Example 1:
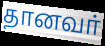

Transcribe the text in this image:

தானவர்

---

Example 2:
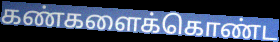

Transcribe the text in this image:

கண்களைக்கொண்ட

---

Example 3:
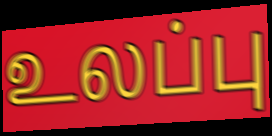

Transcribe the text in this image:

உலப்பு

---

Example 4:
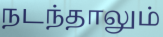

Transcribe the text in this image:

நடந்தாலும்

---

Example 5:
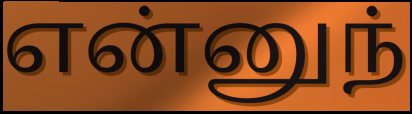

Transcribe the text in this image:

என்னுந்